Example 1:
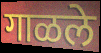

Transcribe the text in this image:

गाळले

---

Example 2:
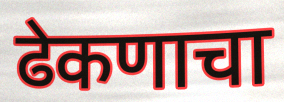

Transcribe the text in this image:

ढेकणाचा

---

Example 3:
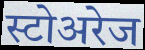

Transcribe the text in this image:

स्टोअरेज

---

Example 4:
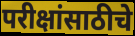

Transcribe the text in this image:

परीक्षांसाठीचे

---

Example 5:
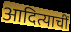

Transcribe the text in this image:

आदित्याचीं